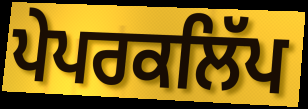
ਪੇਪਰਕਲਿੱਪ